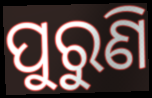
ପୁରୁଣି